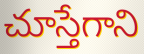
చూస్తేగాని